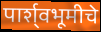
पार्श्वभूमीचे